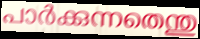
പാർക്കുന്നതെന്തു